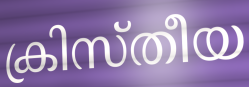
ക്രിസ്തീയ